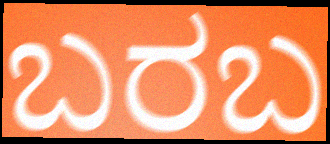
ಬರಬ